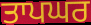
ਤਾਪਘਰ